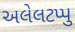
અલેલટપ્પુ